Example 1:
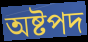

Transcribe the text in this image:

অষ্টপদ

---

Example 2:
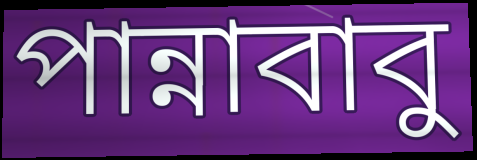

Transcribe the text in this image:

পান্নাবাবু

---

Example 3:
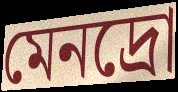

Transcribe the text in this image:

মেনদ্রো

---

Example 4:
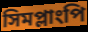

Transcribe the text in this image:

সিমপ্লাংপি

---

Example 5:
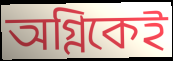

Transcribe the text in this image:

অগ্নিকেই